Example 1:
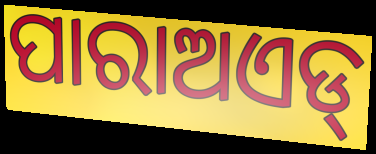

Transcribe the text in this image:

ପାରାଅଏଡ୍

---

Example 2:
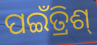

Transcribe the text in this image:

ପଇଁତ୍ରିଶ୍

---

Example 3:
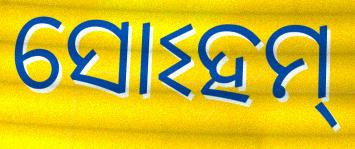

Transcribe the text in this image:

ସୋଽହମ୍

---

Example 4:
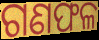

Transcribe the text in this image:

ଗଣଫଳ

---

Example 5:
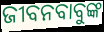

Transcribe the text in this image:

ଜୀବନବାବୁଙ୍କ